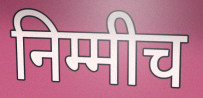
निम्मीच